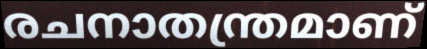
രചനാതന്ത്രമാണ്